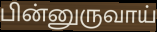
பின்னுருவாய்